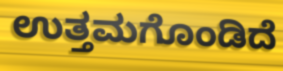
ಉತ್ತಮಗೊಂಡಿದೆ